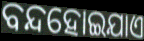
ବନ୍ଦହୋଇଯାଏ